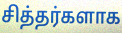
சித்தர்களாக